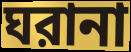
ঘরানা